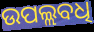
ଉପଲ୍ଲବଧି